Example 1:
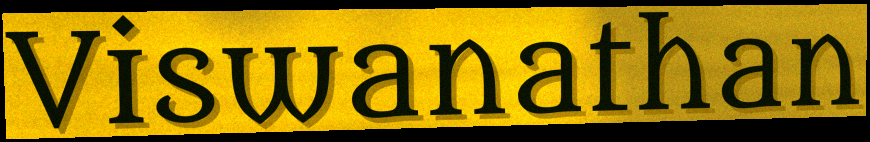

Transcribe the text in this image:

Viswanathan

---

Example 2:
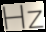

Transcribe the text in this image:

Hz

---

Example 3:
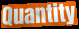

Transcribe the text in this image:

Quantity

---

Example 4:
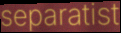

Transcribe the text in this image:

separatist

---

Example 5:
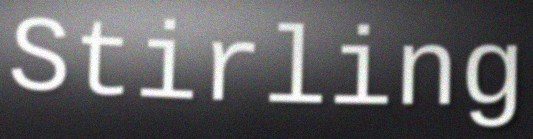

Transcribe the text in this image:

Stirling